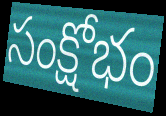
సంక్షోభం